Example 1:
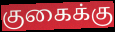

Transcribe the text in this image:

குகைக்கு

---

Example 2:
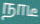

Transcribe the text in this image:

நாடீ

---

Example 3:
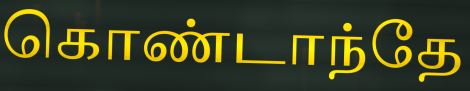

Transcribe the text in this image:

கொண்டாந்தே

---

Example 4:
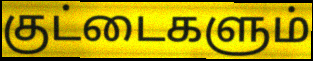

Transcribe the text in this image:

குட்டைகளும்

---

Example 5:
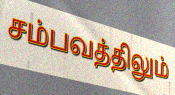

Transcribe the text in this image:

சம்பவத்திலும்